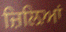
ਜ਼ਿਲ਼ਿਆਂ